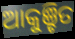
ଆକୁଞ୍ଚିତ